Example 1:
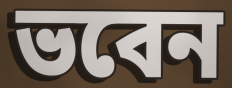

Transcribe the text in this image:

ভবেন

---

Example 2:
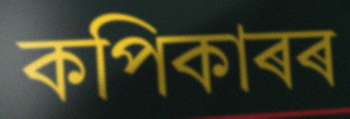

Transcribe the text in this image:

কপিকাৰৰ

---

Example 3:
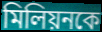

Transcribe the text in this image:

মিলিয়নকে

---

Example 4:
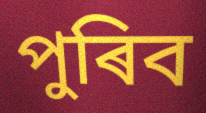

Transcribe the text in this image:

পুৰিব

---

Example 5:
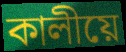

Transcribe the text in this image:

কালীয়ে